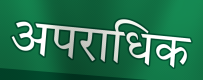
अपराधिक